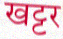
खट्टर